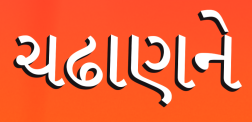
ચઢાણને